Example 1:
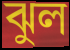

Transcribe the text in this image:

ঝুল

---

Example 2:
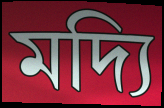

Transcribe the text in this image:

মদ্যি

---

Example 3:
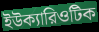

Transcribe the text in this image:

ইউক্যারিওটিক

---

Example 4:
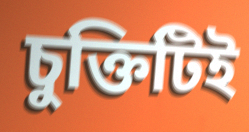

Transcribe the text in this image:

চুক্তিটিই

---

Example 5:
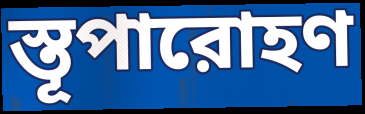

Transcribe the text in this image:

স্তূপারোহণ